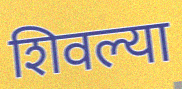
शिवल्या